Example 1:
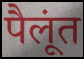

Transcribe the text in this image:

पैलूंत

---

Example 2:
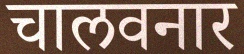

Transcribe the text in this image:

चालवनार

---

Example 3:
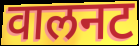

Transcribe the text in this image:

वालनट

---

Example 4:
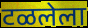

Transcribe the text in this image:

टळलेला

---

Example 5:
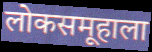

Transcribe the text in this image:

लोकसमूहाला